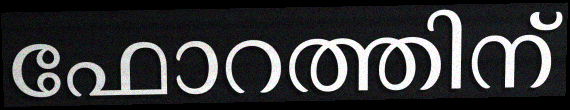
ഫോറത്തിന്